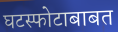
घटस्फोटाबाबत